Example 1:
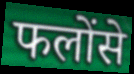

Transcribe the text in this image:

फलोंसे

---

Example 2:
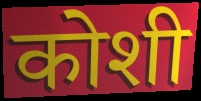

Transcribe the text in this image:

कोशी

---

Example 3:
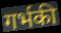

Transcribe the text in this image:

गर्भकी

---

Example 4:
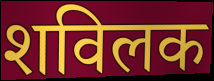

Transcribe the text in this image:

शविलक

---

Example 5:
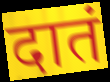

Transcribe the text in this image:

दातं